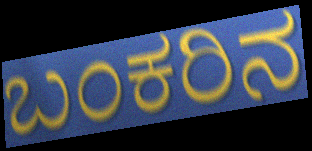
ಬಂಕರಿನ